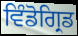
ਵਿੰਡੋਗ੍ਰਿਡ